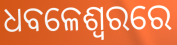
ଧବଳେଶ୍ଵରରେ